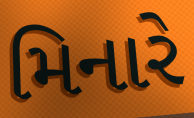
મિનારે